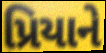
પ્રિયાને